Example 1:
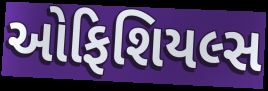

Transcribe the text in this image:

ઓફિશિયલ્સ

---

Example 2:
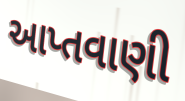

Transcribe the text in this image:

આપ્તવાણી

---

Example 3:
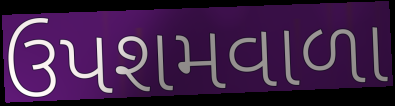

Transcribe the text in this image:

ઉપશમવાળા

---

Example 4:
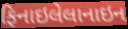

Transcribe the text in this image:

ફિનાઇલેલાનાઇન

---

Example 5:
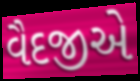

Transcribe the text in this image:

વૈદજીએ